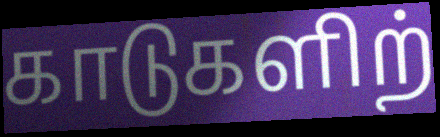
காடுகளிற்